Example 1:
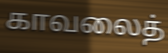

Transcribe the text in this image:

காவலைத்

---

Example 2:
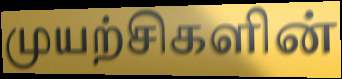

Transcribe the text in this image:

முயற்சிகளின்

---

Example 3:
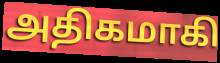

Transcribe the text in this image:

அதிகமாகி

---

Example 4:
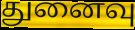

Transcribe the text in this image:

துனைவு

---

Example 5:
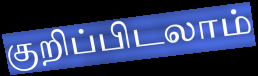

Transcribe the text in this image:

குறிப்பிடலாம்